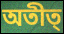
অতীত্